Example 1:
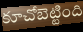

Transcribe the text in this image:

కూచోబెట్టింది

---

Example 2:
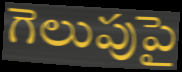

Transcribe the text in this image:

గెలుపుపై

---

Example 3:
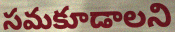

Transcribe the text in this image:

సమకూడాలని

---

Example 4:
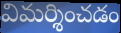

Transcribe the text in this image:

విమర్శించడం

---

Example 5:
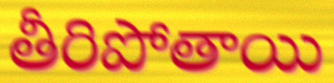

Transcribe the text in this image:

తీరిపోతాయి